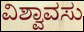
ವಿಶ್ವಾವಸು